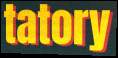
tatory